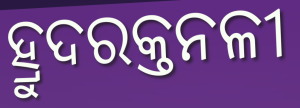
ହ୍ରୁଦରକ୍ତନଳୀ